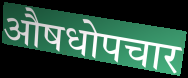
औषधोपचार